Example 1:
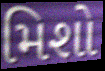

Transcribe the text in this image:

મિશો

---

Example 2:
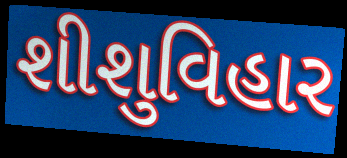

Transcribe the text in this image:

શીશુવિહાર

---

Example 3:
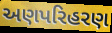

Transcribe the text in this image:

અણપરિહરણ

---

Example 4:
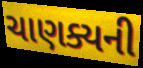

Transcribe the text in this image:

ચાણક્યની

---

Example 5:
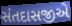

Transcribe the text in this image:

સંતદાસજીએ